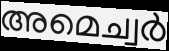
അമെച്വർ